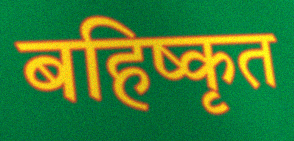
बहिष्कृत